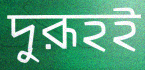
দুরূহই